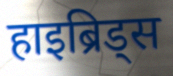
हाइब्रिड्स